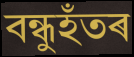
বন্ধুহঁতৰ